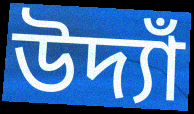
উদ্যাঁ